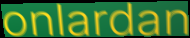
onlardan